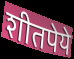
शीतपेये